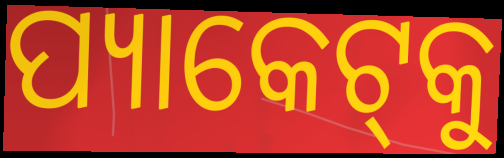
ପ୍ୟାକେଟ୍‌କୁ